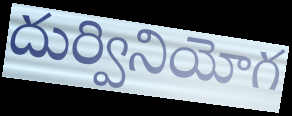
దుర్వినియోగ